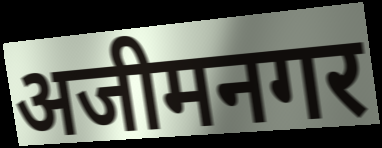
अजीमनगर